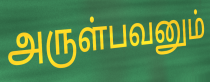
அருள்பவனும்